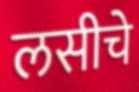
लसीचे